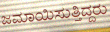
ಜಮಾಯಿಸುತ್ತಿದ್ದರು